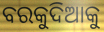
ବରକୁଦିଆକୁ